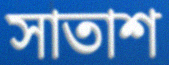
সাতাশ